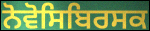
ਨੋਵੋਸਿਬਿਰਸਕ